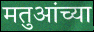
मतुआंच्या